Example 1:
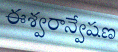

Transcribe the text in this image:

ఈశ్వరాన్వేషణ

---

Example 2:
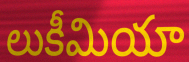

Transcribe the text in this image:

లుకీమియా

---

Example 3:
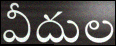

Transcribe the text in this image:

వీదుల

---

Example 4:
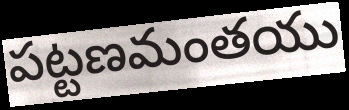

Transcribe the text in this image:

పట్టణమంతయు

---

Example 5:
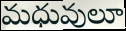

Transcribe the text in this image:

మధువులూ